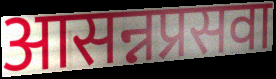
आसन्नप्रसवा